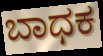
ಬಾಧಕ